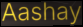
Aashay